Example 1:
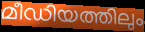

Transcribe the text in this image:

മീഡിയത്തിലും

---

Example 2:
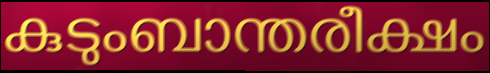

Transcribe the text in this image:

കുടുംബാന്തരീക്ഷം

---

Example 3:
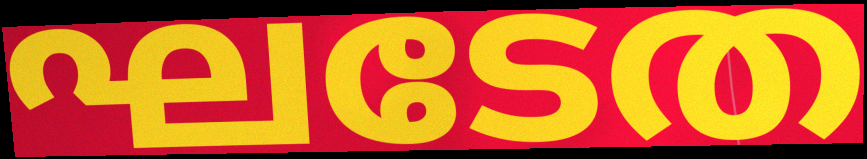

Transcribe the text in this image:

ഘടേത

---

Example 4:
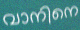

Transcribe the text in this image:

വാനിനെ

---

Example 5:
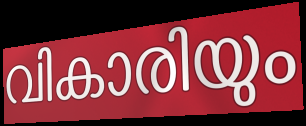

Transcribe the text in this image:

വികാരിയും